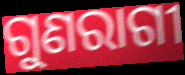
ଗୁଣରାଗୀ